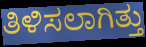
ತಿಳಿಸಲಾಗಿತ್ತು